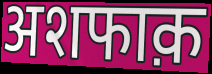
अशफाक़